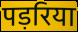
पड़रिया